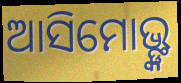
ଆସିମୋଭ୍ଙ୍କ